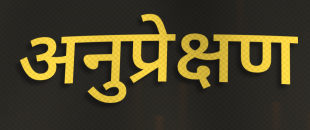
अनुप्रेक्षण